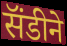
सॅंडीने